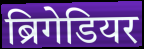
ब्रिगेडियर